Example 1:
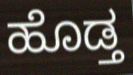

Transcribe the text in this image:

ಹೊಡ್ತ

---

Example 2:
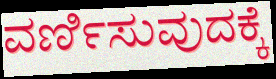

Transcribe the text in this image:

ವರ್ಣಿಸುವುದಕ್ಕೆ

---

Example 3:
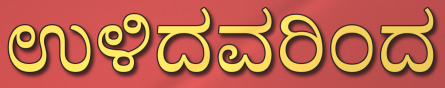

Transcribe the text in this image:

ಉಳಿದವರಿಂದ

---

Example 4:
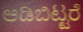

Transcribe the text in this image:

ಆಡಿಬಿಟ್ಟರೆ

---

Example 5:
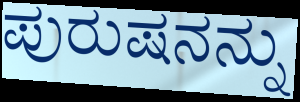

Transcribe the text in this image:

ಪುರುಷನನ್ನು